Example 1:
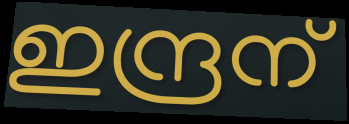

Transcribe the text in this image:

ഇന്ദ്രന്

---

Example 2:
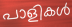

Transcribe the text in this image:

പാളികൾ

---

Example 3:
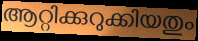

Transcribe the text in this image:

ആറ്റിക്കുറുക്കിയതും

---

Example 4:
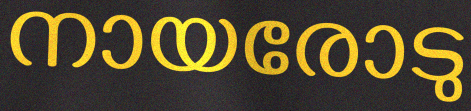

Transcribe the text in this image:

നായരോടു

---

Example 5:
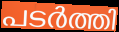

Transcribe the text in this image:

പടർത്തി